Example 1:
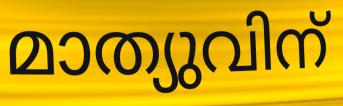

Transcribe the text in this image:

മാത്യുവിന്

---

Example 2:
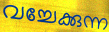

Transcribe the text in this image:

വച്ചേക്കുന്ന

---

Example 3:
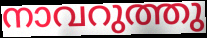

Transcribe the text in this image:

നാവറുത്തു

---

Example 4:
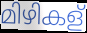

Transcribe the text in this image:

മിഴികള്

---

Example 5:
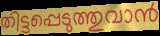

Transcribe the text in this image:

തിട്ടപ്പെടുത്തുവാൻ